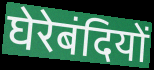
घेरेबंदियों